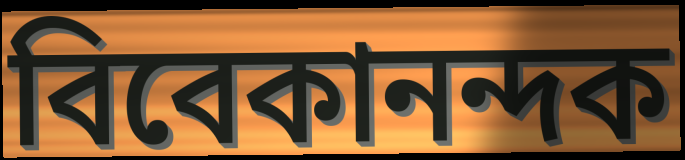
বিবেকানন্দক